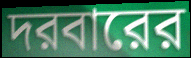
দরবারের